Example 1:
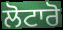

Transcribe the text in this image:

ਲੋਟਾਰੋ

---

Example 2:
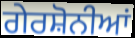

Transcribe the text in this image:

ਗੇਰਸ਼ੋਨੀਆਂ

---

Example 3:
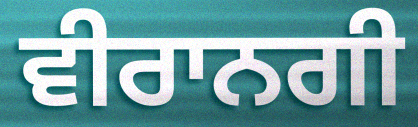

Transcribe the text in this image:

ਵੀਰਾਨਗੀ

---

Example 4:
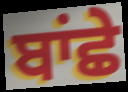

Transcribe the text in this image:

ਬਾਂਛੇ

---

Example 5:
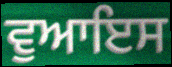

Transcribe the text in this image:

ਵੁਆਇਸ